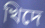
খিদে